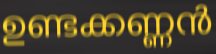
ഉണ്ടക്കണ്ണൻ